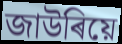
জাউৰিয়ে